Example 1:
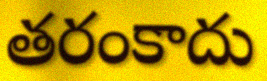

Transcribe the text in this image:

తరంకాదు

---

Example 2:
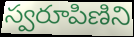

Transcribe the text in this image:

స్వరూపిణిని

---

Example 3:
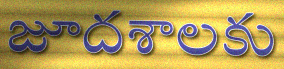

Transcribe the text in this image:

జూదశాలకు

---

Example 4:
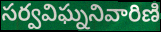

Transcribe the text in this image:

సర్వవిఘ్ననివారిణి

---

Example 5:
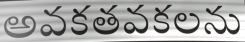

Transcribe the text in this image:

అవకతవకలను